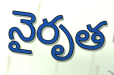
నైరృత